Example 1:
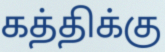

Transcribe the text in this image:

கத்திக்கு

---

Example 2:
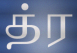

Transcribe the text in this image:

த்ர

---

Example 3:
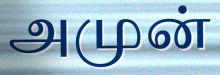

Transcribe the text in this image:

அமுன்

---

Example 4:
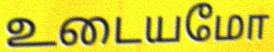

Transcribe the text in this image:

உடையமோ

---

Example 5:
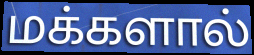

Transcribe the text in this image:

மக்களால்